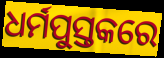
ଧର୍ମପୁସ୍ତକରେ